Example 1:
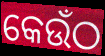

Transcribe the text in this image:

କେଉଁଠ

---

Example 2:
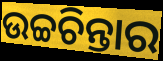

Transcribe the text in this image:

ଉଚ୍ଚଚିନ୍ତାର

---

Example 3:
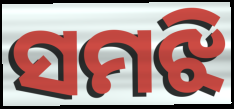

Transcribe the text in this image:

ସମଝି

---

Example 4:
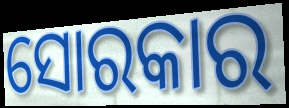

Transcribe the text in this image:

ସୋରକାର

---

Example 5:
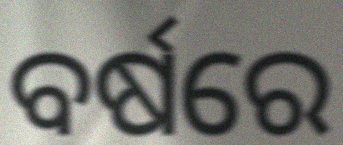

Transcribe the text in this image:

ବର୍ଷରେ